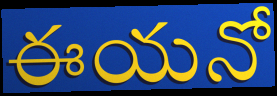
ఈయనో